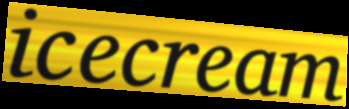
icecream